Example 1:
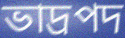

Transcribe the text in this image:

ভাদ্রপদ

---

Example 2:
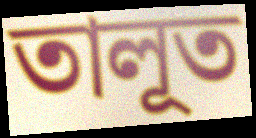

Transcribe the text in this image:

তালূত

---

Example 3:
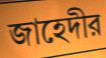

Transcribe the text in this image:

জাহেদীর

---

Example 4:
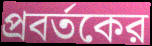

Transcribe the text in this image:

প্রবর্তকের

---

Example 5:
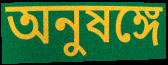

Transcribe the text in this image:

অনুষঙ্গে